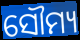
ସୌମ୍ଯ